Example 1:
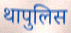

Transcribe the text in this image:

थापुलिस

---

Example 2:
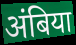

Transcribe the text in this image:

अंबिया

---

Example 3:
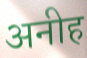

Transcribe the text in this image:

अनीह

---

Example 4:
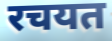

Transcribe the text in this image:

रचयत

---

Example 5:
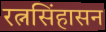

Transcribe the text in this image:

रत्नसिंहासन